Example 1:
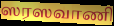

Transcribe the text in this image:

ஸரஸவாணி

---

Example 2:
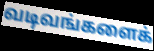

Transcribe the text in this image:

வடிவங்களைக்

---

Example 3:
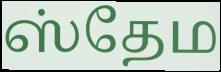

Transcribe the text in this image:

ஸ்தேம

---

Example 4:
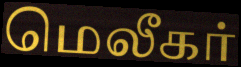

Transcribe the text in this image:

மெலீகர்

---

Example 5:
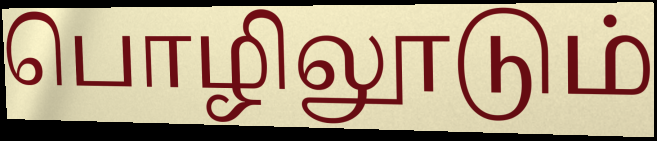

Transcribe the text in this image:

பொழிலூடும்